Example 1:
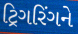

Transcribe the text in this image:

ટ્રિગરિંગને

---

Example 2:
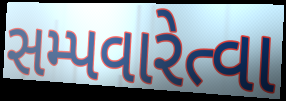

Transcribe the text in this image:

સમ્પવારેત્વા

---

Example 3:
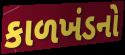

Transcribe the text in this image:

કાળખંડનો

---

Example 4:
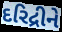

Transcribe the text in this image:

દરિદ્રીને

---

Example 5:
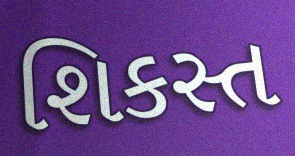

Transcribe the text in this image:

શિકસ્ત